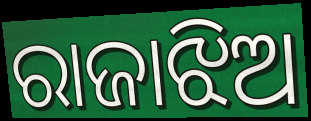
ରାଜାଝିଅ